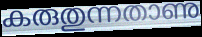
കരുതുന്നതാണു